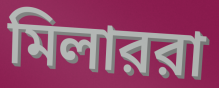
মিলাররা